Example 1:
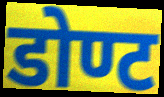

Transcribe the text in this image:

डोण्ट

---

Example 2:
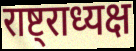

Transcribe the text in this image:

राष्ट्राध्यक्ष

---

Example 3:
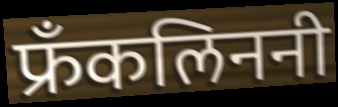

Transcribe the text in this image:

फ्रँकलिननी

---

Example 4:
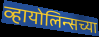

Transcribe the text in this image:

व्हायोलिन्सच्या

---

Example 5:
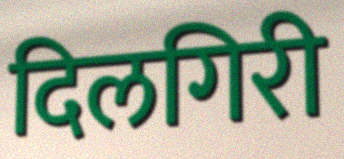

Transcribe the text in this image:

दिलगिरी